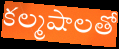
కల్మషాలతో